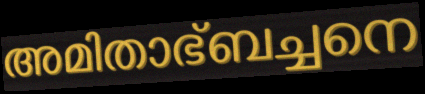
അമിതാഭ്ബച്ചനെ